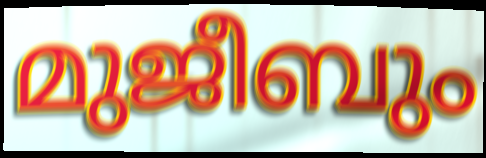
മുജീബും